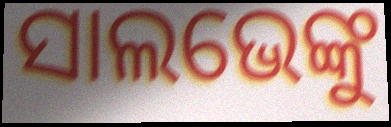
ସାଲଭେଙ୍କୁ